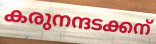
കരുനന്ദടക്കന്